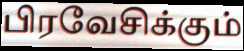
பிரவேசிக்கும்